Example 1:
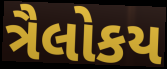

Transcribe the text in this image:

ત્રૈલોકય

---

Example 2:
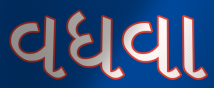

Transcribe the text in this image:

વધવા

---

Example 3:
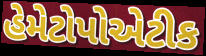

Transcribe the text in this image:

હેમેટોપોએટીક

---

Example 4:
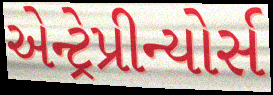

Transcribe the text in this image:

એન્ટ્રેપ્રીન્યોર્સ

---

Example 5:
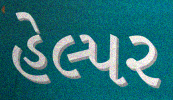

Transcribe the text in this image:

હેલ્પર